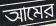
আমের